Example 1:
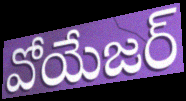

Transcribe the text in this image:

వోయేజర్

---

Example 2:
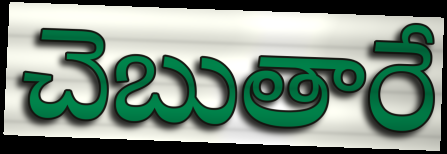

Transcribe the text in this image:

చెబుతారే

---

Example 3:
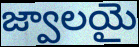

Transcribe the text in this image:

జ్వాలయై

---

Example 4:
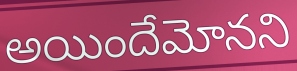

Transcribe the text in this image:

అయిందేమోనని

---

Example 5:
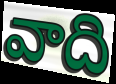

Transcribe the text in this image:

వాది